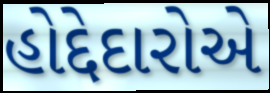
હોદ્દેદારોએ